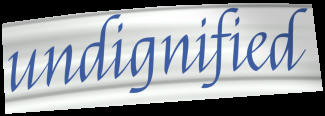
undignified